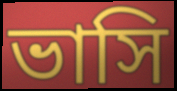
ভাসি